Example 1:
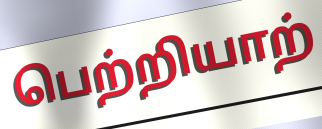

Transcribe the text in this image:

பெற்றியாற்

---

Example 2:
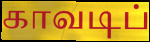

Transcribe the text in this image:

காவடிப்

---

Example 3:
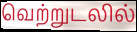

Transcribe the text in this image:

வெற்றுடலில்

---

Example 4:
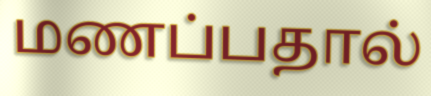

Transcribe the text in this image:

மணப்பதால்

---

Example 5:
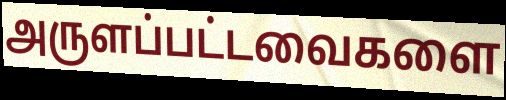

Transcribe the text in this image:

அருளப்பட்டவைகளை